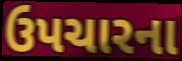
ઉપચારના